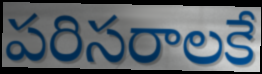
పరిసరాలకే